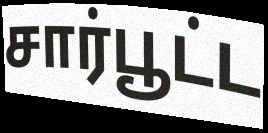
சார்பூட்ட